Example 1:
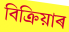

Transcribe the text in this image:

বিক্ৰিয়াৰ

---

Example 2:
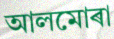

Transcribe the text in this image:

আলমোৰা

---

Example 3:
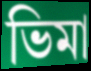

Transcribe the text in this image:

ভিমা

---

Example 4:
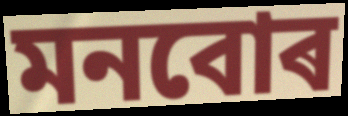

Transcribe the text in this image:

মনবোৰ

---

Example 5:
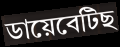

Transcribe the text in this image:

ডায়েবেটিছ